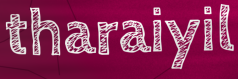
tharaiyil